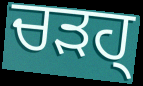
ਚੜਹ੍